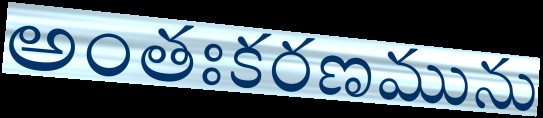
అంతఃకరణమును